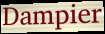
Dampier